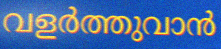
വളർത്തുവാൻ